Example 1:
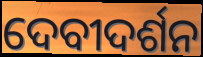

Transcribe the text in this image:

ଦେବୀଦର୍ଶନ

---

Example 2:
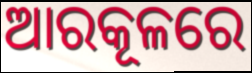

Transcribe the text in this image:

ଆରକୂଳରେ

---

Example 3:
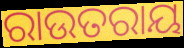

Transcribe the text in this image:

ରାଉତରାୟ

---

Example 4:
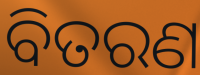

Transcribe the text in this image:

ବିତରଣ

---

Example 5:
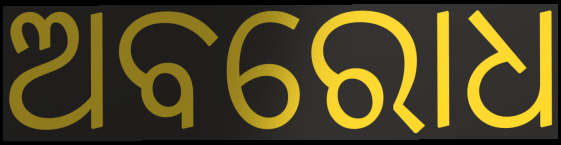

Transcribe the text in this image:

ଅବରୋଧ